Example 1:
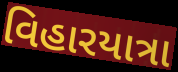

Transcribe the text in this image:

વિહારયાત્રા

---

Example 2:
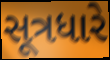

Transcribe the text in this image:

સૂત્રધારે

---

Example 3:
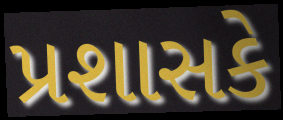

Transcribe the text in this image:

પ્રશાસકે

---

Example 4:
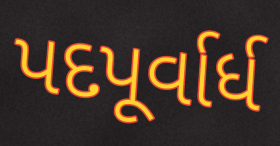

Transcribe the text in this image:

પદપૂર્વાર્ધ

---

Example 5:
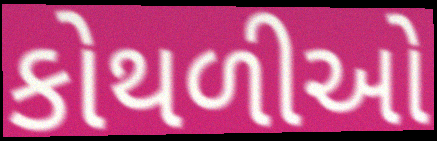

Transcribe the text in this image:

કોથળીઓ